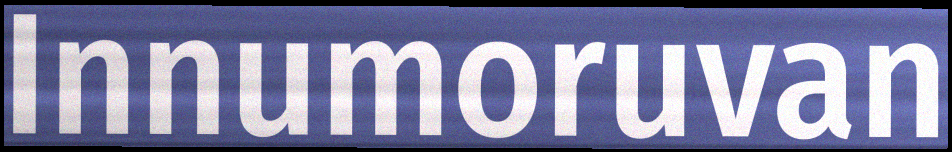
Innumoruvan